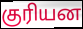
குரியன